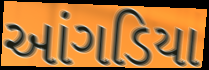
આંગડિયા